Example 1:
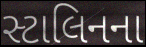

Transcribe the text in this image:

સ્ટાલિનના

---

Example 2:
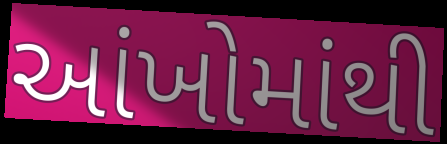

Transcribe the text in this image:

આંખોમાંથી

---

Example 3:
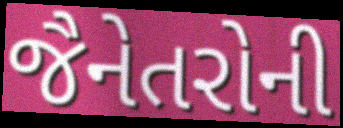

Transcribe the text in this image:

જૈનેતરોની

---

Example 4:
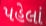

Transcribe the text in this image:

પહેલાં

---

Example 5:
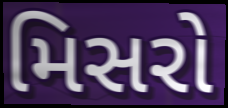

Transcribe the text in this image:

મિસરો